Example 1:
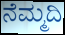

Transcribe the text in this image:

ನೆಮ್ಮದಿ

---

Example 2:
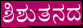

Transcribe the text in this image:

ಶಿಶುತನದ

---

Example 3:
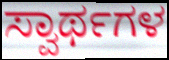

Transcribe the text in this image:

ಸ್ವಾರ್ಥಗಳ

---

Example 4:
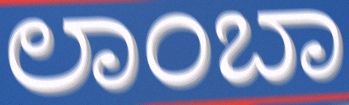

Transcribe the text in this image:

ಲಾಂಬಾ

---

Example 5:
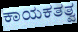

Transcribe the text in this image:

ಕಾಯಕತತ್ವ